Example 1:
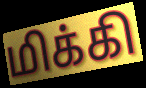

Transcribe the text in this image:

மிக்கி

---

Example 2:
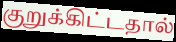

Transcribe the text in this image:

குறுக்கிட்டதால்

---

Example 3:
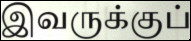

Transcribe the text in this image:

இவருக்குப்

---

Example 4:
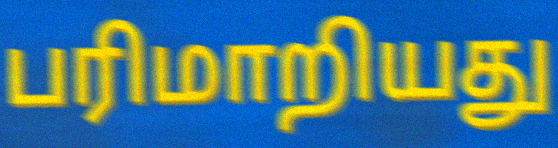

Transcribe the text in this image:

பரிமாறியது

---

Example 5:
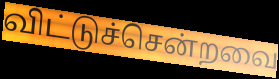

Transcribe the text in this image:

விட்டுச்சென்றவை